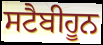
ਸਟੈਬੀਹੂਨ